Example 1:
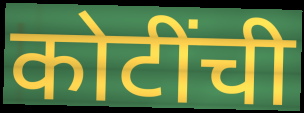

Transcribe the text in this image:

कोटींची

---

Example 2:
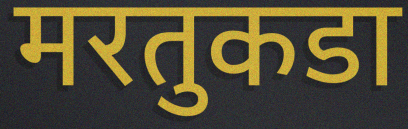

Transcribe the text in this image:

मरतुकडा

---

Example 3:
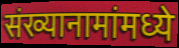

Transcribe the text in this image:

संख्यानामांमध्ये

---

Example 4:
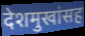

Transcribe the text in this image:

देशमुखांसह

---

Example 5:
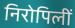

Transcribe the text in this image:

निरोपिलीं